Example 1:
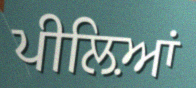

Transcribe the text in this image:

ਪੀਲ਼ਿਆਂ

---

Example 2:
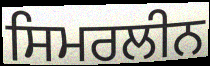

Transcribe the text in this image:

ਸਿਮਰਲੀਨ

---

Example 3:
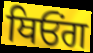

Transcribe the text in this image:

ਥਿਓਂਗ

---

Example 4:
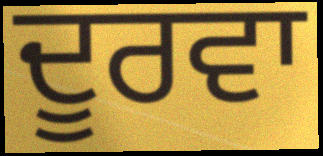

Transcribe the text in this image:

ਦੂਰਵਾ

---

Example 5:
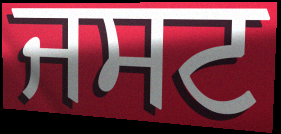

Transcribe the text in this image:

ਜਸਟ